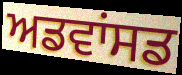
ਅਡਵਾਂਸਡ